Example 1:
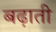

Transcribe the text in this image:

बढ़ाती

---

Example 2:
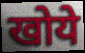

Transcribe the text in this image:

खोये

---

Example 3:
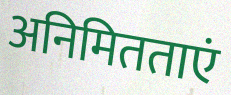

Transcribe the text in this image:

अनिमितताएं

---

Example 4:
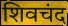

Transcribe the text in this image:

शिवचंद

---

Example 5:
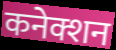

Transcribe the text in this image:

कनेक्‍शन